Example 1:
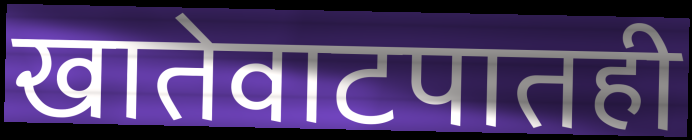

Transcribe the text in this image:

खातेवाटपातही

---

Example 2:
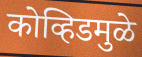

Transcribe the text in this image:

कोव्हिडमुळे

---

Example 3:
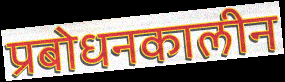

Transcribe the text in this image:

प्रबोधनकालीन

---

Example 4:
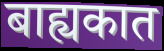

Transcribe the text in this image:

बाह्यकात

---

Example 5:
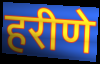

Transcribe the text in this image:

हरीणे